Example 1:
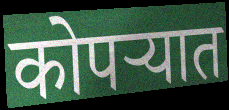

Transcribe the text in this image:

कोपऱ्यात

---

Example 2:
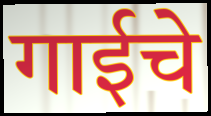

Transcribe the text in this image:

गाईचे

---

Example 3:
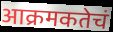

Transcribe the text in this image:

आक्रमकतेचं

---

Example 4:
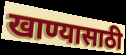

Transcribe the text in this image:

खाण्यासाठी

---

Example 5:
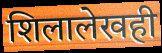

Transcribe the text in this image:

शिलालेखही